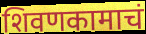
शिवणकामाचं